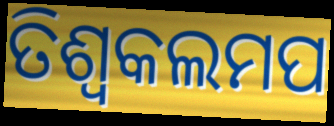
ତିଶ୍ୱକଲମପ